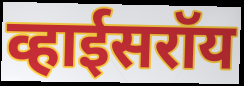
व्हाईसरॉय